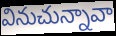
వినుచున్నావా